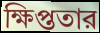
ক্ষিপ্ততার